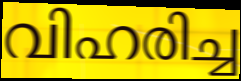
വിഹരിച്ച